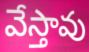
వేస్తావు